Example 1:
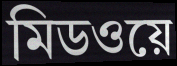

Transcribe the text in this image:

মিডওয়ে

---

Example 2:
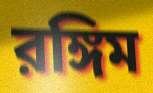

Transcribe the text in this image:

রঙ্গিম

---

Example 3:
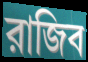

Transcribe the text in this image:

রাজিব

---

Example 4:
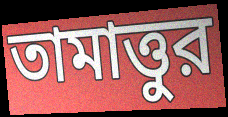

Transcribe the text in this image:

তামাত্তুর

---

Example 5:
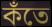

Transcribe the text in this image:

কঁতে